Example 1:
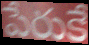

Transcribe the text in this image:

పేరుకే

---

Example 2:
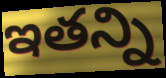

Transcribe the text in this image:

ఇతన్ని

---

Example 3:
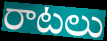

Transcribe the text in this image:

రాటలు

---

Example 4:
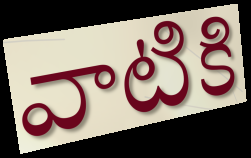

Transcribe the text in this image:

వాటికి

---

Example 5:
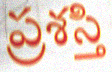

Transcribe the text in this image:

ప్రశస్తి